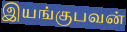
இயங்குபவன்